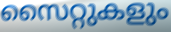
സൈറ്റുകളും